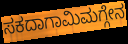
ಸಕದಾಗಾಮಿಮಗ್ಗೇನ